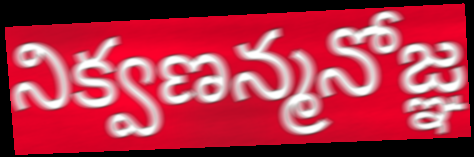
నిక్వణన్మనోజ్ఞ